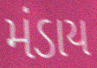
મંડાય